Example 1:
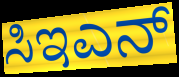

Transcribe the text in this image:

ಸಿಇಎನ್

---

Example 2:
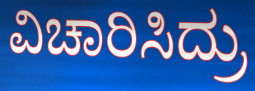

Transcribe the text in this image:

ವಿಚಾರಿಸಿದ್ರು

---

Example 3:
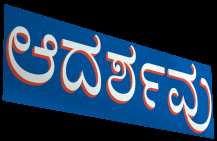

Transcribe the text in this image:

ಆದರ್ಶವು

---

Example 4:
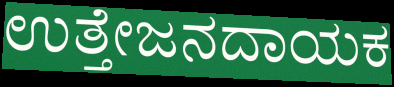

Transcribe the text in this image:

ಉತ್ತೇಜನದಾಯಕ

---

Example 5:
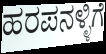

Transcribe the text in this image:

ಹರಪನಳ್ಳಿಗೆ